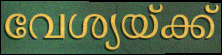
വേശ്യയ്ക്ക്